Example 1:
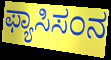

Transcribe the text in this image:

ಫ್ಯಾಸಿಸಂನ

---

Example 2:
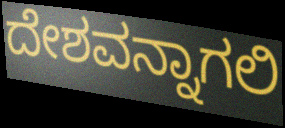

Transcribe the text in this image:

ದೇಶವನ್ನಾಗಲಿ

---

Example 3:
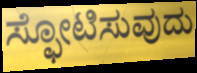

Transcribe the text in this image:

ಸ್ಫೋಟಿಸುವುದು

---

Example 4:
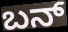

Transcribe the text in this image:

ಬನ್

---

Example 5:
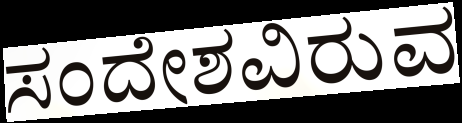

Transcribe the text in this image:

ಸಂದೇಶವಿರುವ